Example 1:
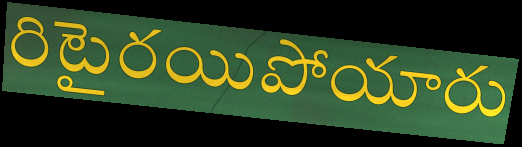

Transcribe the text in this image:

రిటైరయిపోయారు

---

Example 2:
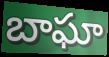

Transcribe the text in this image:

బాఘా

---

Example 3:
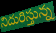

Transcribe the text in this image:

నిదురిస్తున్న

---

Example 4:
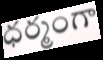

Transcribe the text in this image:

ధర్మంగా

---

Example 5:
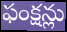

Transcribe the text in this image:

ఫంక్షన్లు